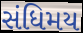
સંધિમય